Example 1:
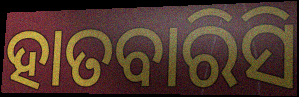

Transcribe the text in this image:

ହାତବାରିସି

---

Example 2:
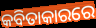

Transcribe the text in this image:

କବିତାକାରରେ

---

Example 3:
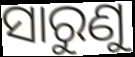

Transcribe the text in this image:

ସାରୁଣୁ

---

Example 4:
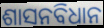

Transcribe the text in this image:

ଶାସନବିଧାନ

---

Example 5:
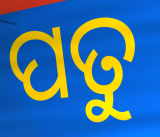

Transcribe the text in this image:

ପତୁ